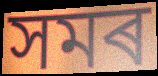
সমৰ